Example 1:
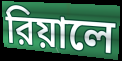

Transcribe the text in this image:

রিয়ালে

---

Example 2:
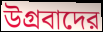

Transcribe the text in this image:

উগ্রবাদের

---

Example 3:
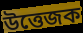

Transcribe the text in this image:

উত্তেজক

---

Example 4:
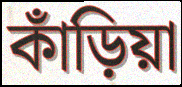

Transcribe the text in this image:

কাঁড়িয়া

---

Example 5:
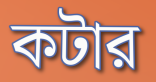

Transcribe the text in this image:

কটার